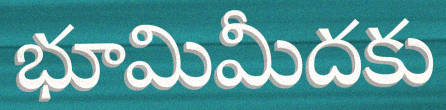
భూమిమీదకు